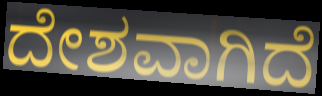
ದೇಶವಾಗಿದೆ